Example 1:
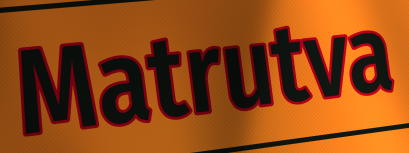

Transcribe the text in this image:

Matrutva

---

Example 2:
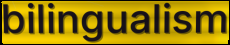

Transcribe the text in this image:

bilingualism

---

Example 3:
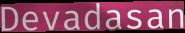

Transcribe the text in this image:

Devadasan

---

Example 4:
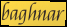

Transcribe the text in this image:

baghnar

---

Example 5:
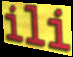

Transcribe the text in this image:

ili